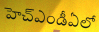
హెచ్ఎండీఏలో